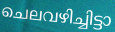
ചെലവഴിച്ചിട്ടാ